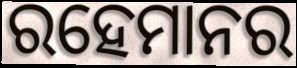
ରହେମାନର